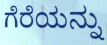
ಗೆರೆಯನ್ನು